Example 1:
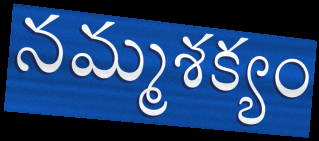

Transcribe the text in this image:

నమ్మశక్యం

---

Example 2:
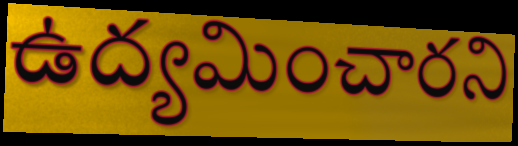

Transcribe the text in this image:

ఉద్యమించారని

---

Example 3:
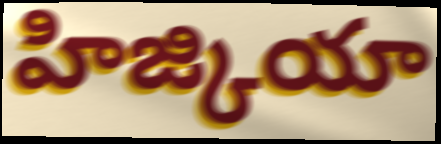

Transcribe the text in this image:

హిజ్కియా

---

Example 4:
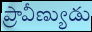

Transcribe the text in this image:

ప్రావీణ్యుడు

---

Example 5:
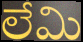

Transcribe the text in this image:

లేమి